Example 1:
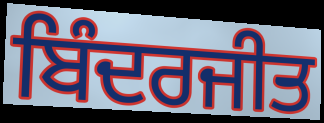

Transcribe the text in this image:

ਬਿੰਦਰਜੀਤ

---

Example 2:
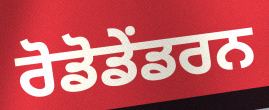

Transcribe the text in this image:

ਰੋਡੋਡੇਂਡਰਨ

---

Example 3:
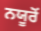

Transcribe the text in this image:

ਨਯੂਰੋਂ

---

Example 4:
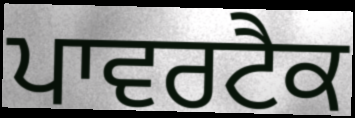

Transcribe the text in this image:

ਪਾਵਰਟੈਕ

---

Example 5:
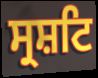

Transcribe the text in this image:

ਸ੍ਰਸ਼ਟਿ